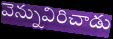
వెన్నువిరిచాడు